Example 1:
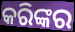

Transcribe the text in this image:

କରିଙ୍କର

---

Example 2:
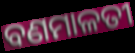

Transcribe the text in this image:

ବଣମାଳତୀ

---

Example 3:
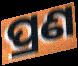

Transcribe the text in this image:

ପ୍ରଣ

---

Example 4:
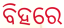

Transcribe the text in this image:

ବିହରେ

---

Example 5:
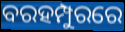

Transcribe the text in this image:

ବରହମ୍ପୁରରେ